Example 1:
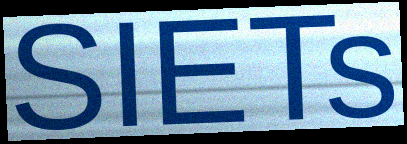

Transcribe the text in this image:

SIETs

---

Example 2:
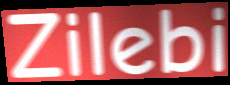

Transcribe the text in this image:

Zilebi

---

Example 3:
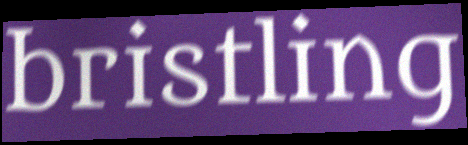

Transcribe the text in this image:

bristling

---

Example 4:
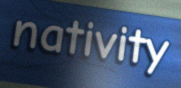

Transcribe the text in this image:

nativity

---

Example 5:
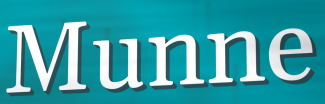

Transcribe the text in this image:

Munne